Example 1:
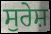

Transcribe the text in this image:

ਸੁਰੇਸ਼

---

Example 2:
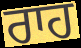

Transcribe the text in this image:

ਰਾਹ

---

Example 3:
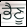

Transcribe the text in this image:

ਭੈਣੂ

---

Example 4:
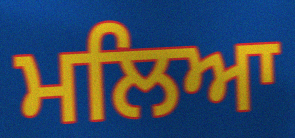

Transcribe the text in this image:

ਮਲਿਆ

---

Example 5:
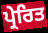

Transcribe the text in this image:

ਪ੍ਰੇਰਿਤ